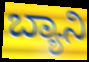
ಬ್ಯಾನಿ